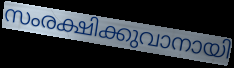
സംരക്ഷിക്കുവാനായി